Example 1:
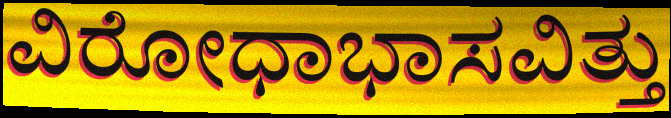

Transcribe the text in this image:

ವಿರೋಧಾಭಾಸವಿತ್ತು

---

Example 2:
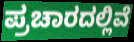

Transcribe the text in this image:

ಪ್ರಚಾರದಲ್ಲಿವೆ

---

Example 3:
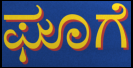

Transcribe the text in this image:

ಘೂಗೆ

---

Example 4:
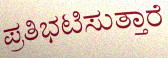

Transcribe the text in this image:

ಪ್ರತಿಭಟಿಸುತ್ತಾರೆ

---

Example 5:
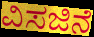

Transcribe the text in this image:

ವಿಸಜಿನೆ